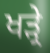
ਖੜ੍ਰੇ